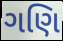
ગણિ